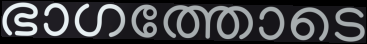
ഭാഗത്തോടെ